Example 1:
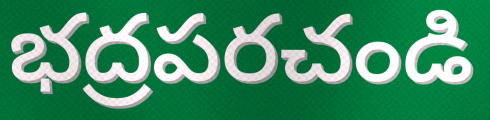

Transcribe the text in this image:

భద్రపరచండి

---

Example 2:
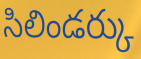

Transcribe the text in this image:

సిలిండర్కు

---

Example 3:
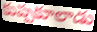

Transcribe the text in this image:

కుప్పకూలాడు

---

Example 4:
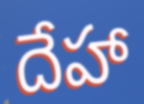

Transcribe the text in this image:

దేహా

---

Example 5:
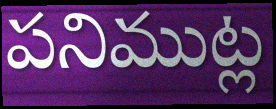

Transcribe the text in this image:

పనిముట్ల